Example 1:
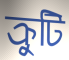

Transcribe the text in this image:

ক্রুটি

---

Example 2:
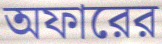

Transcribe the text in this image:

অফারের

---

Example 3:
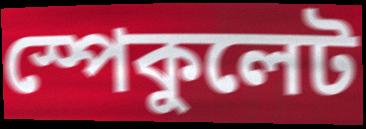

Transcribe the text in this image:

স্পেকুলেট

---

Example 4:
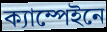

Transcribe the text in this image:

ক্যাম্পেইনে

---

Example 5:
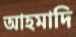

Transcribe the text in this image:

আহমাদি